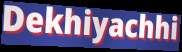
Dekhiyachhi